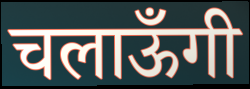
चलाऊँगी